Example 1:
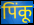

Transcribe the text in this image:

पिंकू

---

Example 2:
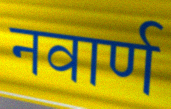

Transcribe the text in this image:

नवार्ण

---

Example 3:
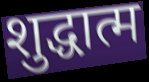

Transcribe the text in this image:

शुद्धात्म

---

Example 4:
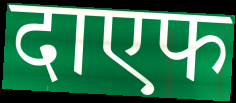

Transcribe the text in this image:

दाएफ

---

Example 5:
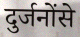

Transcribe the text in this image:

दुर्जनोंसे